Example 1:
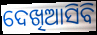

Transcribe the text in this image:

ଦେଖିଆସିବି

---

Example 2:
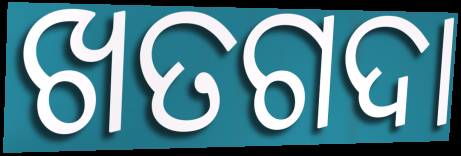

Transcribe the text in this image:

ଖତଗଦା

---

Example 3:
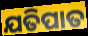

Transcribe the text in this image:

ଯତିପାତ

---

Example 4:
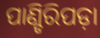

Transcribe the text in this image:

ପାଣ୍ଡିରିପଡ଼ା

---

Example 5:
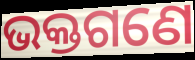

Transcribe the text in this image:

ଭକ୍ତଗଣେ